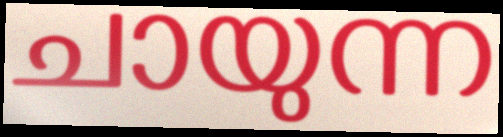
ചായുന്ന